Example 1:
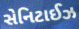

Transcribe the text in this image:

સેનિટાઈઝ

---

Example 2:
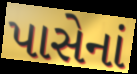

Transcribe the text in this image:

પાસેનાં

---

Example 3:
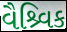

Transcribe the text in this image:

વૈશ્ર્વિક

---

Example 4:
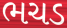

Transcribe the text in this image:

ભચડ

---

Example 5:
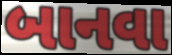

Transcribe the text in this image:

બાનવા